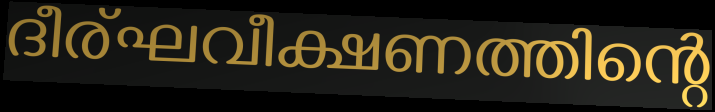
ദീര്ഘവീക്ഷണത്തിന്റെ